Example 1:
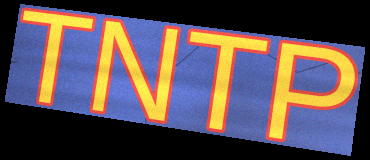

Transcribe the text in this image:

TNTP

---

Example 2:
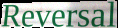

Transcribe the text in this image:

Reversal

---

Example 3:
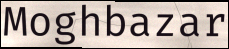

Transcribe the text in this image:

Moghbazar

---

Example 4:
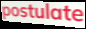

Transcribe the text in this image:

postulate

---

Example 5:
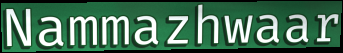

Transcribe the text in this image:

Nammazhwaar